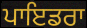
ਪਾਇਡਰਾ